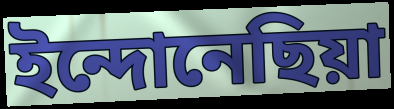
ইন্দোনেছিয়া